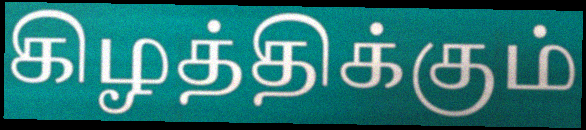
கிழத்திக்கும்